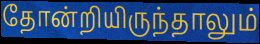
தோன்றியிருந்தாலும்